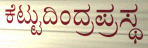
ಕೆಟ್ಟುದಿಂದ್ರಪ್ರಸ್ಥ